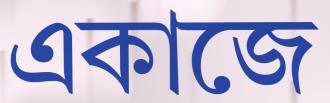
একাজে